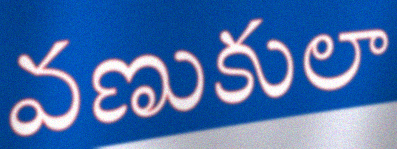
వణుకులా